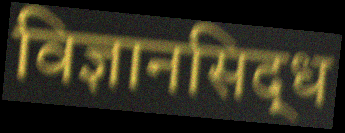
विज्ञानसिद्ध